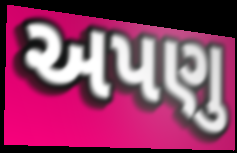
અપણુ